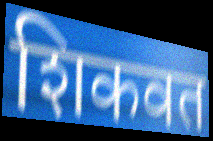
शिकवत